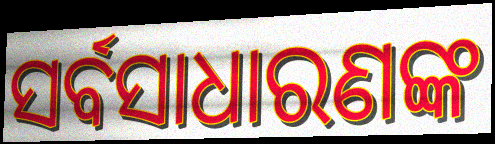
ସର୍ବସାଧାରଣଙ୍କ